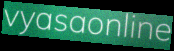
vyasaonline